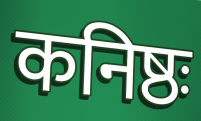
कनिष्ठः